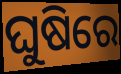
ଘୁଷିରେ